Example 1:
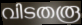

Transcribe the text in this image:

വിടതരൂ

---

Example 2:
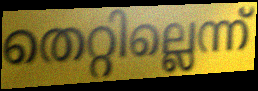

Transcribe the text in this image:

തെറ്റില്ലെന്ന്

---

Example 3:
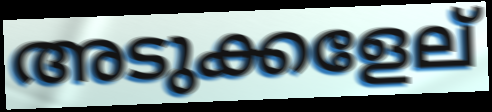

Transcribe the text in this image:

അടുക്കളേല്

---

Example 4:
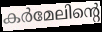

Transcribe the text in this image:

കർമേലിന്റെ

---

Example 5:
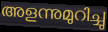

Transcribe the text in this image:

അളന്നുമുറിച്ചു